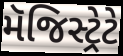
મૅજિસ્ટ્રેટે